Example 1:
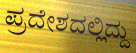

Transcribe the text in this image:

ಪ್ರದೇಶದಲ್ಲಿದ್ದು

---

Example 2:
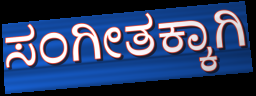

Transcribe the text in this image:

ಸಂಗೀತಕ್ಕಾಗಿ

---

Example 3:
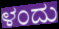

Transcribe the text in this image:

ಳಂದು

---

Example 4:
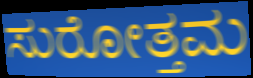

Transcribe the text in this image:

ಸುರೋತ್ತಮ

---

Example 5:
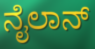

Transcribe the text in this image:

ನೈಲಾನ್